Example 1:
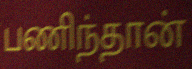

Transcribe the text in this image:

பணிந்தான்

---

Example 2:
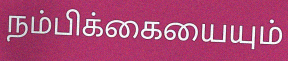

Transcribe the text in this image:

நம்பிக்கையையும்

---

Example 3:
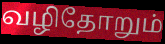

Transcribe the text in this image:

வழிதோறும்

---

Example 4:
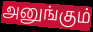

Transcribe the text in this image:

அனுங்கும்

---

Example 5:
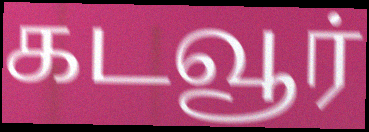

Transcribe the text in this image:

கடவூர்